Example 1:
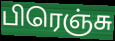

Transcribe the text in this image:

பிரெஞ்சு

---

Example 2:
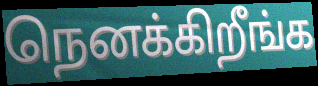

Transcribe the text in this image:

நெனக்கிறீங்க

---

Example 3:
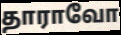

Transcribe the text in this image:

தாராவோ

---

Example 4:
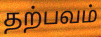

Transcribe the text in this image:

தற்பவம்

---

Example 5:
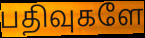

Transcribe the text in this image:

பதிவுகளே